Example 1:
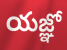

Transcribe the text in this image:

యజ్ఞో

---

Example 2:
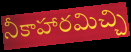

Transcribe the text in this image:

నీకాహారమిచ్చి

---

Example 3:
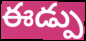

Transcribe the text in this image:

ఈడ్పు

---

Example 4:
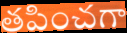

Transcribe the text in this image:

తపించగా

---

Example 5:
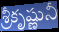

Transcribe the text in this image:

శ్రీకృష్ణునీ